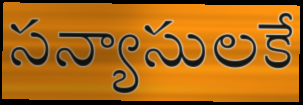
సన్యాసులకే